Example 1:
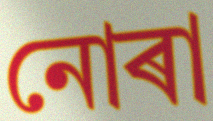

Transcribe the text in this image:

নোৰা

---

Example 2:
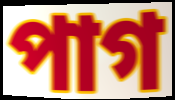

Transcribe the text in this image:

পাগ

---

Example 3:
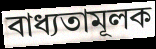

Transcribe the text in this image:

বাধ্যতামূলক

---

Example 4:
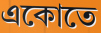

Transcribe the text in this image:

একোতে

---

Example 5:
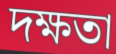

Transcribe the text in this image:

দক্ষতা